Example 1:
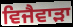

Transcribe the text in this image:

ਵਿਜੈਵਾੜਾ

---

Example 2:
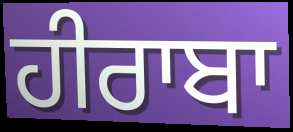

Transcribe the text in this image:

ਹੀਰਾਬਾ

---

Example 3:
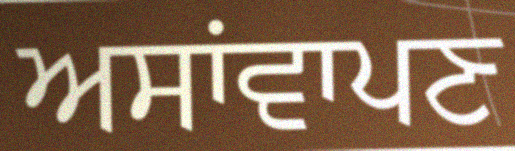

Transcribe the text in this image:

ਅਸਾਂਵਾਪਣ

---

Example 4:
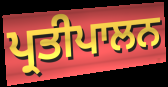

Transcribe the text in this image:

ਪ੍ਰਤੀਪਾਲਨ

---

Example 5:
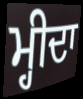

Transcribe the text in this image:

ਮ੍ਹੀਦਾ